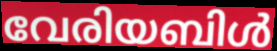
വേരിയബിൾ